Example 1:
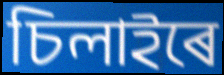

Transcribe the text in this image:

চিলাইৰে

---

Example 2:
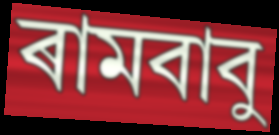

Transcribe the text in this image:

ৰামবাবু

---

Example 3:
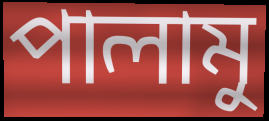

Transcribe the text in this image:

পালামু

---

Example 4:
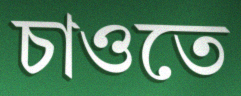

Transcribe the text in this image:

চাওতে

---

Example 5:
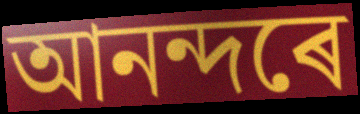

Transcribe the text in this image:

আনন্দৰে